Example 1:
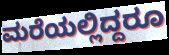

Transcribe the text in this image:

ಮರೆಯಲ್ಲಿದ್ದರೂ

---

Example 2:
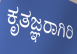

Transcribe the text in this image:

ಕೃತಜ್ಞರಾಗಿರಿ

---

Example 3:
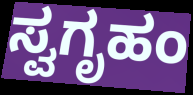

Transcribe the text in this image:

ಸ್ವಗೃಹಂ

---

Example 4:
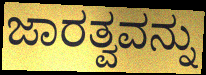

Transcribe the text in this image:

ಜಾರತ್ವವನ್ನು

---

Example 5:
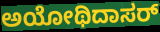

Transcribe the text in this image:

ಅಯೋಥಿದಾಸರ್